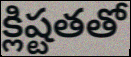
క్లిష్టతతో